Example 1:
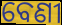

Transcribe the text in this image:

ବେଣୀ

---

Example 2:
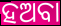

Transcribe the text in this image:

ହଅବା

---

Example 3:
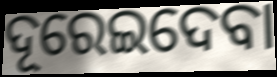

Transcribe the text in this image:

ଦୂରେଇଦେବା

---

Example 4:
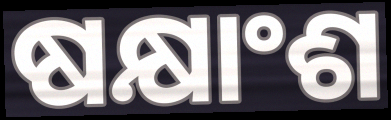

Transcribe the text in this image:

ଷକ୍ଷାଂଶ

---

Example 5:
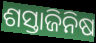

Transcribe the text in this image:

ଶସ୍ତାଜିନିଷ